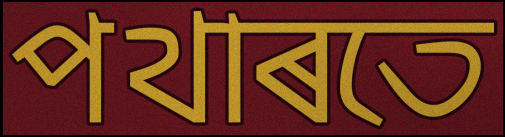
পথাৰতে